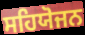
ਸਹਿਯੋਜਨ